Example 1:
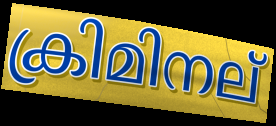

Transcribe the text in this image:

ക്രിമിനല്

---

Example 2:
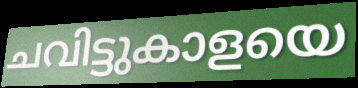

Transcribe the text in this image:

ചവിട്ടുകാളയെ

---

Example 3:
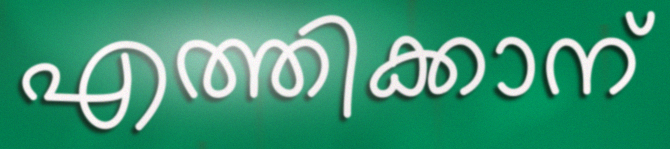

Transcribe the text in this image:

എത്തിക്കാന്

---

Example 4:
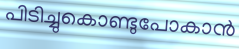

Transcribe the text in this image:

പിടിച്ചുകൊണ്ടുപോകാൻ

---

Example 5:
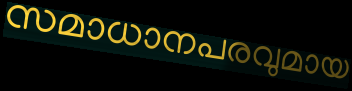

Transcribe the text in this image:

സമാധാനപരവുമായ